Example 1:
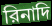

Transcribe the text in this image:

রিনাদি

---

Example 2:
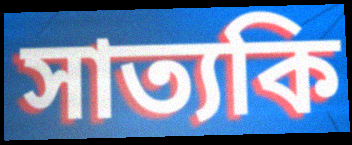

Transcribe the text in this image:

সাত্যকি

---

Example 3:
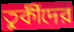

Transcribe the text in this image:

তুর্কীদের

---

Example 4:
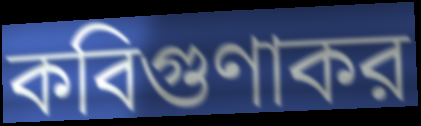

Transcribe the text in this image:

কবিগুণাকর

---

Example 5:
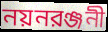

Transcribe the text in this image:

নয়নরঞ্জনী